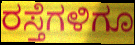
ರಸ್ತೆಗಳಿಗೂ